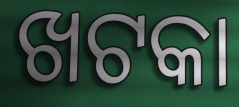
ଖଟକା